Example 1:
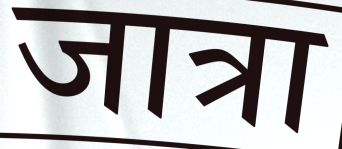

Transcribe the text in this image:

जात्रा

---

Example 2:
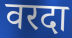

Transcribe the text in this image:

वरदा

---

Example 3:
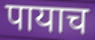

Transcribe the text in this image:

पायाच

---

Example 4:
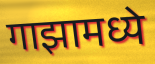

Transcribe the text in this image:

गाझामध्ये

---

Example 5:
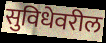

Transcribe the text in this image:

सुविधेवरील